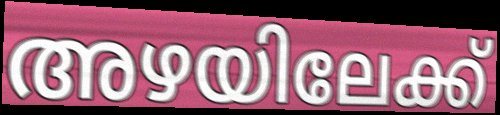
അഴയിലേക്ക്